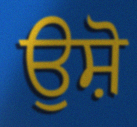
ਉਸ਼ੋ